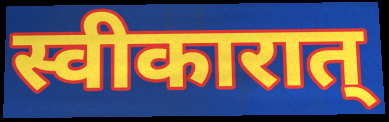
स्वीकारात्